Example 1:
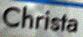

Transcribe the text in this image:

Christa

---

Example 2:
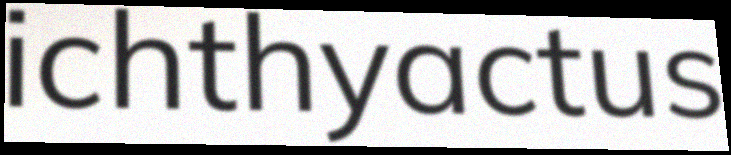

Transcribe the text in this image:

ichthyactus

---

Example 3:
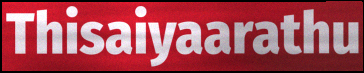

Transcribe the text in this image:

Thisaiyaarathu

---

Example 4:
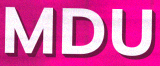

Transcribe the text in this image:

MDU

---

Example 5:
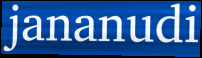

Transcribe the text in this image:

jananudi